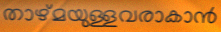
താഴ്മയുള്ളവരാകാൻ